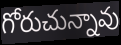
గోరుచున్నావు